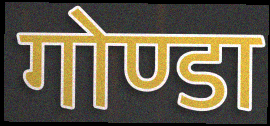
गोण्डा